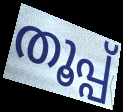
തൂപ്പ്